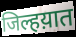
जिल्हय़ात